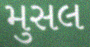
મુસલ